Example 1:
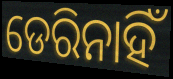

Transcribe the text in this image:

ଡେରିନାହିଁ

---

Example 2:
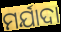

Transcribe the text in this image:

ମର୍ଯାଦା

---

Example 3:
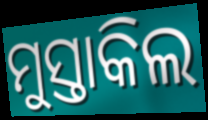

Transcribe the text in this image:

ମୁସ୍ତାକିଲ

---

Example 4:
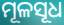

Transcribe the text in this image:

ମୂଳସୂଧ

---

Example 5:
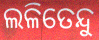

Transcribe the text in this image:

ଲଳିତେନ୍ଦୁ